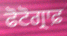
ਫੋਟੋਗ੍ਰਾਫ਼